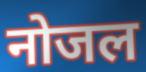
नोजल